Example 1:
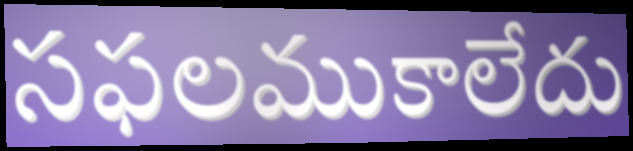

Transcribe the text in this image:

సఫలముకాలేదు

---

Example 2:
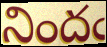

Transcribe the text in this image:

నిందఁ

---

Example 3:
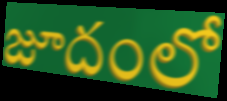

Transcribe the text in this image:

జూదంలో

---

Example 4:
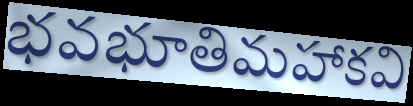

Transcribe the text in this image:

భవభూతిమహాకవి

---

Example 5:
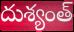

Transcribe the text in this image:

దుశ్యంత్